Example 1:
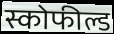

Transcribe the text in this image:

स्कोफील्ड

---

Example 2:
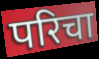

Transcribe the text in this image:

परिचा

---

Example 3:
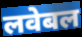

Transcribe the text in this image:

लवेबल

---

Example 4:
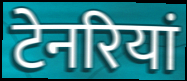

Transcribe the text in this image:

टेनरियां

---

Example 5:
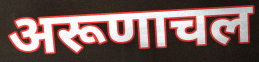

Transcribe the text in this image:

अरूणाचल